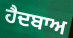
ਹੈਦਬਾਅ